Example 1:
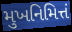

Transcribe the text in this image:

મુખનિમિત્તં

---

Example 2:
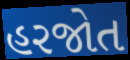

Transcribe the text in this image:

હરજોત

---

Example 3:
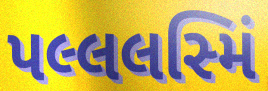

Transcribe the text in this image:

પલ્લલસ્મિં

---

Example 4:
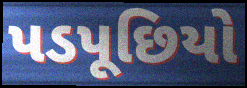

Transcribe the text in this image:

પડપૂછિયો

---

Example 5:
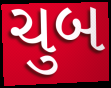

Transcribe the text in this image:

ચુબ